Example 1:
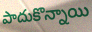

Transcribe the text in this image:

పాదుకొన్నాయి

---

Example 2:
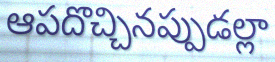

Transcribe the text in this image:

ఆపదొచ్చినప్పుడల్లా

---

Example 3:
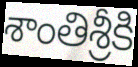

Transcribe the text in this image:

శాంతిశ్రీకి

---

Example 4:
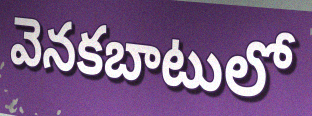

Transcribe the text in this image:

వెనకబాటులో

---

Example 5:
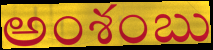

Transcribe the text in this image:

అంశంబు